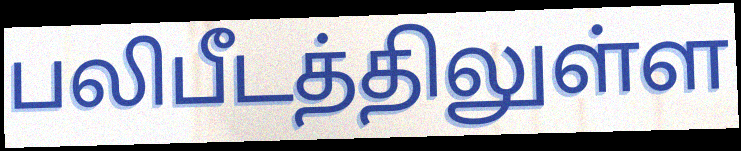
பலிபீடத்திலுள்ள